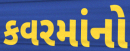
કવરમાંનો